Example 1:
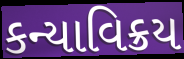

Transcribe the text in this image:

કન્યાવિક્રય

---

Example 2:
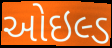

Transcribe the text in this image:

ઓઇલ્ડ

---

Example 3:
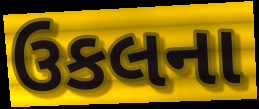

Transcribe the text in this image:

ઉકલના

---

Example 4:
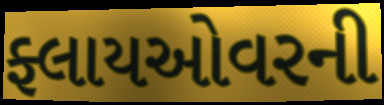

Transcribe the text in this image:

ફ્લાયઓવરની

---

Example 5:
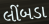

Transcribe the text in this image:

લીંબડા